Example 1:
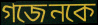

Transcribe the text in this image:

গজেনকে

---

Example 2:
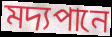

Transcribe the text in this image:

মদ্যপানে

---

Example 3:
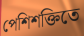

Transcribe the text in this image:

পেশিশক্তিতে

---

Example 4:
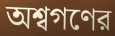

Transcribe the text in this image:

অশ্বগণের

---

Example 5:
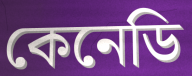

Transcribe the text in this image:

কেনেডি